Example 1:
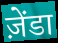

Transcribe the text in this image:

ज़ेंडा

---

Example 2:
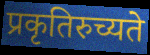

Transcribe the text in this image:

प्रकृतिरुच्यते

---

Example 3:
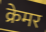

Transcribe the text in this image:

क्रेमर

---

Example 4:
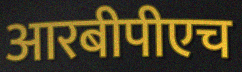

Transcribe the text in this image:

आरबीपीएच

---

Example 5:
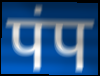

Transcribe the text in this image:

पंप